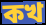
কখ